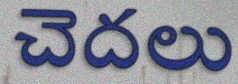
చెదలు